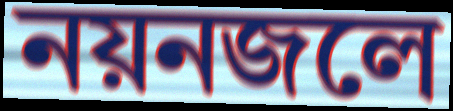
নয়নজলে